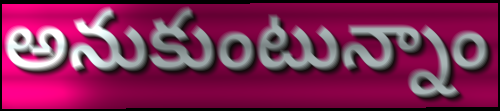
అనుకుంటున్నాం